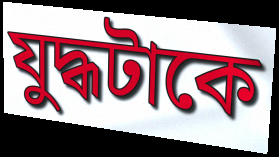
যুদ্ধটাকে